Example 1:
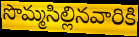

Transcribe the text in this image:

సొమ్మసిల్లినవారికి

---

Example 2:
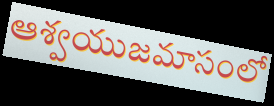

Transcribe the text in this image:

ఆశ్వయుజమాసంలో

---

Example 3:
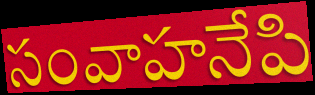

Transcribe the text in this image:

సంవాహనేపి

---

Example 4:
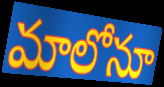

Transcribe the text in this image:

మాలోనూ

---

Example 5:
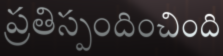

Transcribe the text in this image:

ప్రతిస్పందించింది